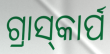
ଗ୍ରାସ୍‌କାର୍ପ